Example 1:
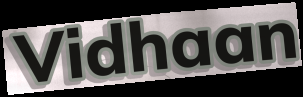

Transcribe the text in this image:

Vidhaan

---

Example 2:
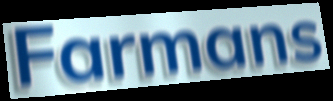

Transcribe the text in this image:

Farmans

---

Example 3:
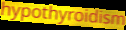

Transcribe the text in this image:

hypothyroidism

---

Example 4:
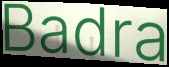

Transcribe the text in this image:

Badra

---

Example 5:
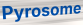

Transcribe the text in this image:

Pyrosome